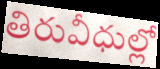
తిరువీధుల్లో